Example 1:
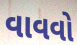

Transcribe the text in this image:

વાવવો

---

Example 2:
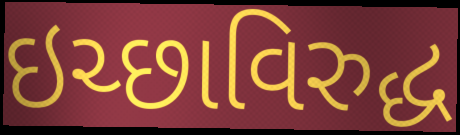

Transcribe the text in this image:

ઇચ્છાવિરુદ્ધ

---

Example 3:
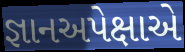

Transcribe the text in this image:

જ્ઞાનઅપેક્ષાએ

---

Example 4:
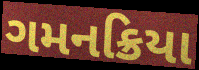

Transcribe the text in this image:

ગમનક્રિયા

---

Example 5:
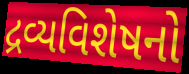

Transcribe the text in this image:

દ્રવ્યવિશેષનો